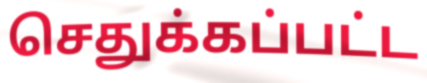
செதுக்கப்பட்ட